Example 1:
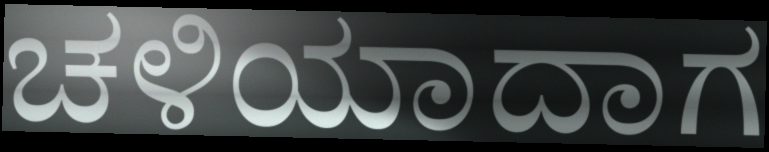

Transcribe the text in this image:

ಚಳಿಯಾದಾಗ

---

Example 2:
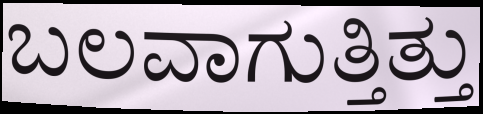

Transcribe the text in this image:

ಬಲವಾಗುತ್ತಿತ್ತು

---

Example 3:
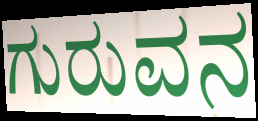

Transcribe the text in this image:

ಗುರುವನ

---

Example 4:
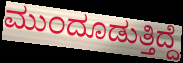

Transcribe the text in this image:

ಮುಂದೂಡುತ್ತಿದ್ದೆ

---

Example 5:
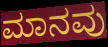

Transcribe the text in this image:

ಮಾನವು